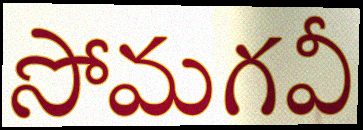
సోమగవీ